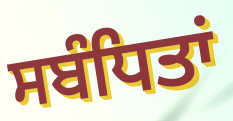
ਸਬੰਧਿਤਾਂ